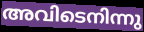
അവിടെനിന്നു